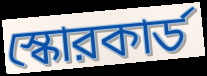
স্কোরকার্ড